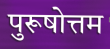
पुरूषोत्तम